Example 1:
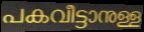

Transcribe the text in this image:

പകവീട്ടാനുള്ള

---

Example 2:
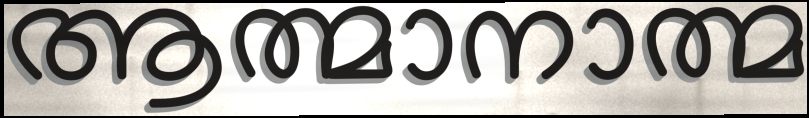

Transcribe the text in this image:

ആത്മാനാത്മ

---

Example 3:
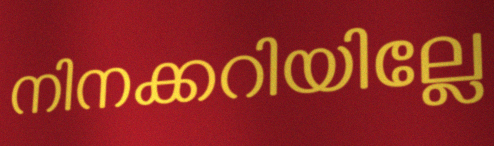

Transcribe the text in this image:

നിനക്കറിയില്ലേ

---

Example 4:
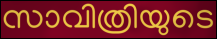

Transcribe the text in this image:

സാവിത്രിയുടെ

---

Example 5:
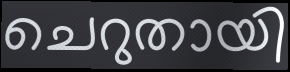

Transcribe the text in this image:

ചെറുതായി